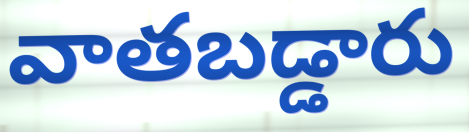
వాతబడ్డారు